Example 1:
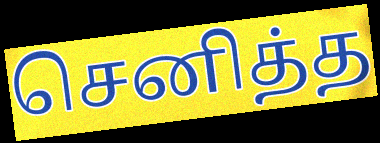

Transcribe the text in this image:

செனித்த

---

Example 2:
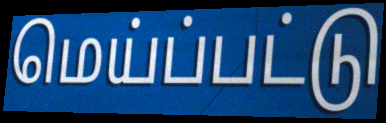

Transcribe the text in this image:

மெய்ப்பட்டு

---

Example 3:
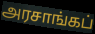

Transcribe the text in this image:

அரசாங்கப்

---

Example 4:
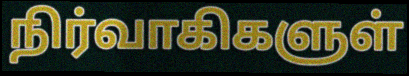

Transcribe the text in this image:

நிர்வாகிகளுள்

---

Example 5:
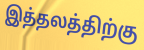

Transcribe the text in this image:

இத்தலத்திற்கு